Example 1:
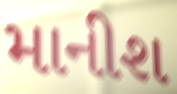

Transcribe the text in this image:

માનીશ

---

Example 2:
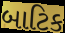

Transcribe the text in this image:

બાટિક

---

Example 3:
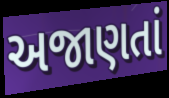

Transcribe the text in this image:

અજાણતાં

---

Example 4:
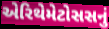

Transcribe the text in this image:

એરિથેમેટોસસનું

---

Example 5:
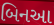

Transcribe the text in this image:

બિનઆ